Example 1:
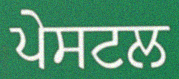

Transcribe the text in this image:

ਪੇਸਟਲ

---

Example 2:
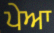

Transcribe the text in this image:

ਪੇਆ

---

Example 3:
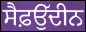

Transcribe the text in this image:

ਸੈਫ਼ਉੱਦੀਨ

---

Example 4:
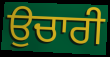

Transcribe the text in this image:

ਉਚਾਰੀ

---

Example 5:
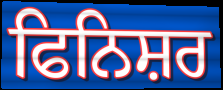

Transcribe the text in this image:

ਫਿਨਿਸ਼ਰ